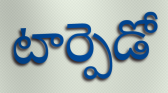
టార్పెడో